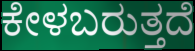
ಕೇಳಬರುತ್ತದೆ